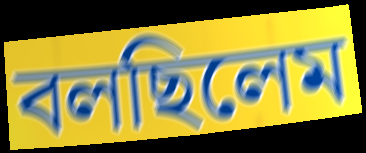
বলছিলেম